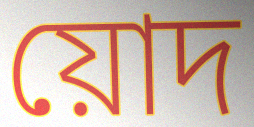
য়োদ